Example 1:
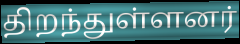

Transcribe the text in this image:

திறந்துள்ளனர்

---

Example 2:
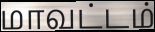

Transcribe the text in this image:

மாவட்டம்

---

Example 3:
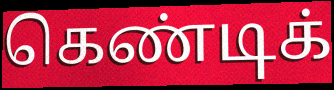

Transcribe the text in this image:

கெண்டிக்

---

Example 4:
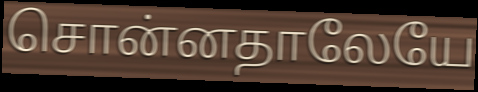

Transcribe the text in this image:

சொன்னதாலேயே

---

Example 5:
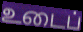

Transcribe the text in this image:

உடைப்